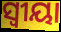
ସ୍ଵୀୟା